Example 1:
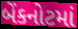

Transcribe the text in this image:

બેંકનોટમાં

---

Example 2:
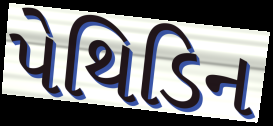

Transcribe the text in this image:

પેથિડિન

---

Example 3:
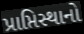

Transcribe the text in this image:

પ્રાપ્તિસ્થાનો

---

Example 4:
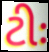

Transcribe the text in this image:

ટીઃ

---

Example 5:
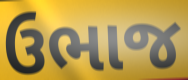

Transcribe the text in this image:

ઉભાજ